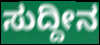
ಸುದ್ದೀನ